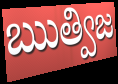
ఋత్విజ